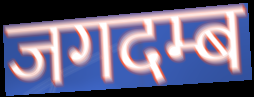
जगदम्ब